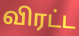
விரட்ட